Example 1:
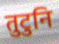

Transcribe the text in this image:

तुटुनि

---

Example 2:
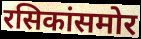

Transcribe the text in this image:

रसिकांसमोर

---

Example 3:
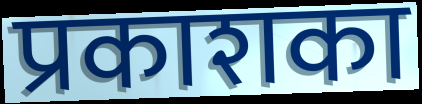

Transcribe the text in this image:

प्रकाशका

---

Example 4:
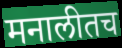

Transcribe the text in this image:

मनालीतच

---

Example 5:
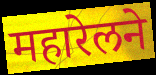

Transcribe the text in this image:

महारेलने